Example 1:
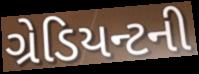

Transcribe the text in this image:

ગ્રેડિયન્ટની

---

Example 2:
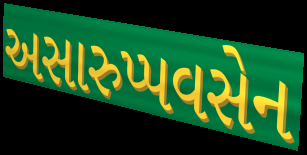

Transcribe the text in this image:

અસારુપ્પવસેન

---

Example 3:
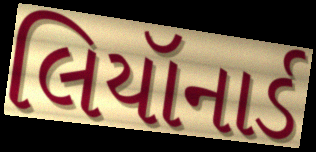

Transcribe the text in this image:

લિયૉનાર્ડ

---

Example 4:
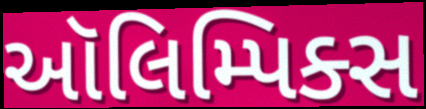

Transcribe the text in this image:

ઑલિમ્પિક્સ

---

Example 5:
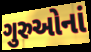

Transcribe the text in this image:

ગુરુઓનાં